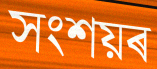
সংশয়ৰ